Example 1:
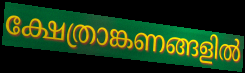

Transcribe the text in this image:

ക്ഷേത്രാങ്കണങ്ങളിൽ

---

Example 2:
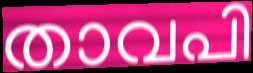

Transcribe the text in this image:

താവപി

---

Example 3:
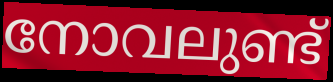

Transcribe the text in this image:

നോവലുണ്ട്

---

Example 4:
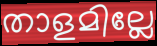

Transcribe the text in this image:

താളമില്ലേ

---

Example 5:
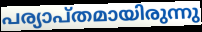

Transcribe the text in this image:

പര്യാപ്തമായിരുന്നു